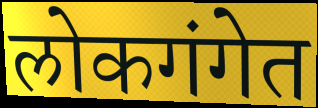
लोकगंगेत